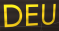
DEU